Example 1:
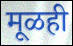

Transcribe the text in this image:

मूळही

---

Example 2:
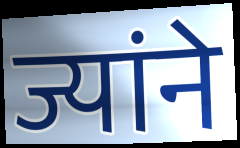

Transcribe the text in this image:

ज्यांने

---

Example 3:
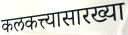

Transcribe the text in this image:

कलकत्त्यासारख्या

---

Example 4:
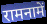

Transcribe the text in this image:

रामनामें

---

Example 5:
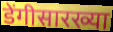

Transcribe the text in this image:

डेंगीसारख्या